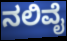
ನಲಿವೈ